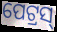
ପେଟ୍ରସ୍